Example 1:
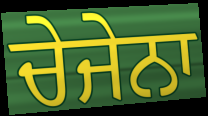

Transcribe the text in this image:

ਚੇਜੇਨਾ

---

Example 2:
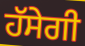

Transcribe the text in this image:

ਹੱਸੇਗੀ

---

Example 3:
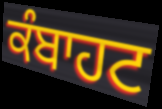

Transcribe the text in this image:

ਕੰਬਾਹਟ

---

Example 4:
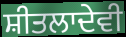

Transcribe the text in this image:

ਸ਼ੀਤਲਾਦੇਵੀ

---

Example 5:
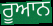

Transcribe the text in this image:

ਰੂਆਨ